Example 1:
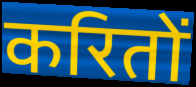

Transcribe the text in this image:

करितों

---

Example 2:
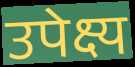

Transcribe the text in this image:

उपेक्ष्य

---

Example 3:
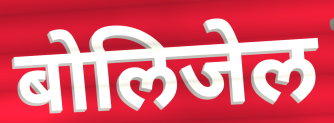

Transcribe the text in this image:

बोलिजेल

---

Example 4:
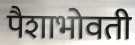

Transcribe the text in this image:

पैशाभोवती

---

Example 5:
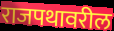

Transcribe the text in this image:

राजपथावरील